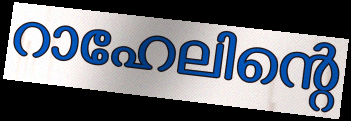
റാഹേലിന്റെ